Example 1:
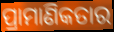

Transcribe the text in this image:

ପ୍ରାମାଣିକତାର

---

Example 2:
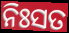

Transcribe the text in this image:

ନିଃସତ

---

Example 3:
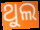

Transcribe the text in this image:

ଥୁଲ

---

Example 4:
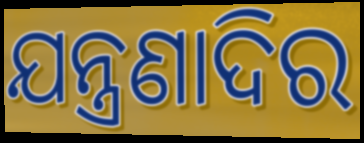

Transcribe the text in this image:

ଯନ୍ତ୍ରଣାଦିର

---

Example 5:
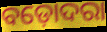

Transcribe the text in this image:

ବଡ଼ୋଦରା